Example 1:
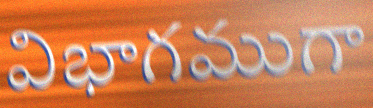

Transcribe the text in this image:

విభాగముగా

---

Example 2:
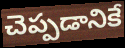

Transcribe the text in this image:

చెప్పడానికే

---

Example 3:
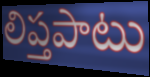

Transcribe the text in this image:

లిప్తపాటు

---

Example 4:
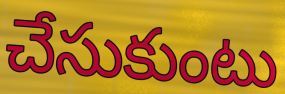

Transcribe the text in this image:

చేసుకుంటు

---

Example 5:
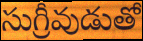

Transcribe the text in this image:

సుగ్రీవుడుతో